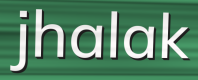
jhalak